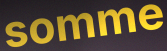
somme